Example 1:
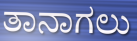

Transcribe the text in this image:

ತಾನಾಗಲು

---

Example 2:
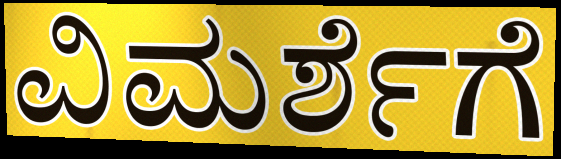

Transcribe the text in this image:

ವಿಮರ್ಶೆಗೆ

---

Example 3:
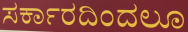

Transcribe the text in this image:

ಸರ್ಕಾರದಿಂದಲೂ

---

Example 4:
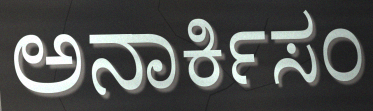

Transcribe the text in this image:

ಅನಾರ್ಕಿಸಂ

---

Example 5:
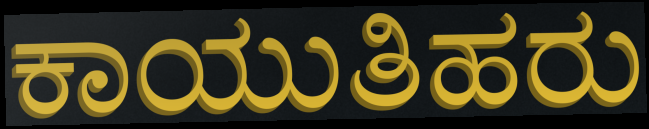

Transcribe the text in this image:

ಕಾಯುತಿಹರು